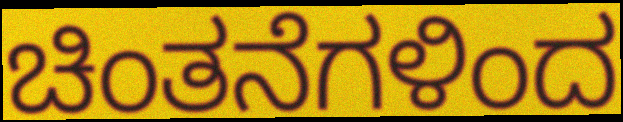
ಚಿಂತನೆಗಳಿಂದ